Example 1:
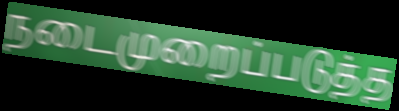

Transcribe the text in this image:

நடைமுறைப்படுத்த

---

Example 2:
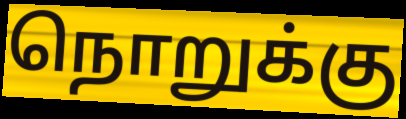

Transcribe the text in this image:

நொறுக்கு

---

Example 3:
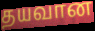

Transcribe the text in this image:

தயவான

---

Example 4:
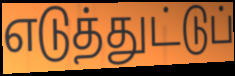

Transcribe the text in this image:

எடுத்துட்டுப்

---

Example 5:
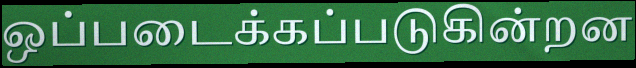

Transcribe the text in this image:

ஒப்படைக்கப்படுகின்றன